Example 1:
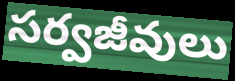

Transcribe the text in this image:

సర్వజీవులు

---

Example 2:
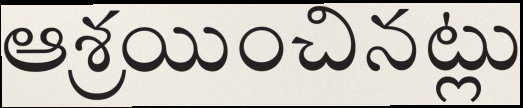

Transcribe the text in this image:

ఆశ్రయించినట్లు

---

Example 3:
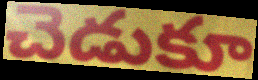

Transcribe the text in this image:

చెడుకూ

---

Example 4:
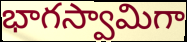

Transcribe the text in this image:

భాగస్వామిగా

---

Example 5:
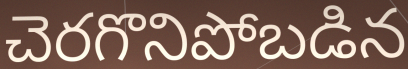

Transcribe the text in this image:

చెరగొనిపోబడిన